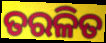
ତରଳିତ